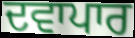
ਦਵਾਪਾਰ